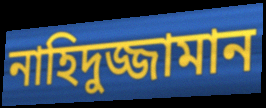
নাহিদুজ্জামান